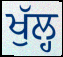
ਖੁੱਲ੍ਹ